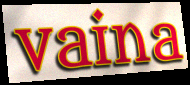
vaina